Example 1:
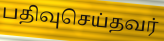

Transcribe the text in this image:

பதிவுசெய்தவர்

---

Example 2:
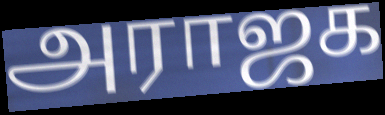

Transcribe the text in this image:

அராஜக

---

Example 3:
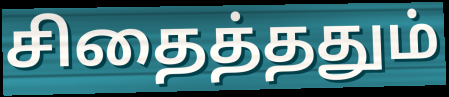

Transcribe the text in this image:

சிதைத்ததும்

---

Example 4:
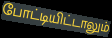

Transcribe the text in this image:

போட்டியிட்டாலும்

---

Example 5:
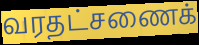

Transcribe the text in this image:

வரதட்சணைக்